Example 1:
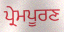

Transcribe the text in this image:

ਪ੍ਰੇਮਪੂਰਣ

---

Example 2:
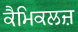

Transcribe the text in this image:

ਕੈਮਿਕਲਜ਼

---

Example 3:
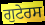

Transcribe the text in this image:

ਗੁਟੇਰਸ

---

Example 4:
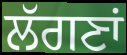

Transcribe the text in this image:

ਲੱਗਣਾਂ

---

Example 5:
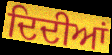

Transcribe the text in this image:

ਦਿਦੀਆਂ